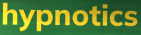
hypnotics